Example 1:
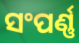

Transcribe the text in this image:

ସଂପର୍ଣ୍ଣ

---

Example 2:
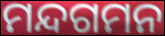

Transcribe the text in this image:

ମନ୍ଦଗମନ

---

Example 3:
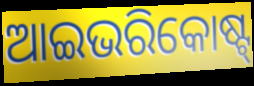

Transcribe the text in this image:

ଆଇଭରିକୋଷ୍ଟ୍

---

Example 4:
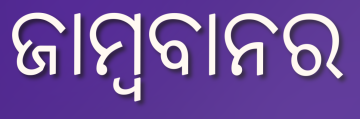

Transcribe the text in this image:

ଜାମ୍ବବାନର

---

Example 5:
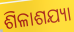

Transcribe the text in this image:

ଶିଳାଶଯ୍ୟା